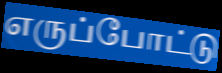
எருப்போட்டு